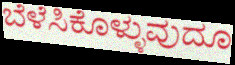
ಬೆಳೆಸಿಕೊಳ್ಳುವುದೂ